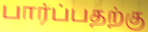
பார்ப்பதற்கு